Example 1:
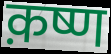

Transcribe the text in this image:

क़ष्ण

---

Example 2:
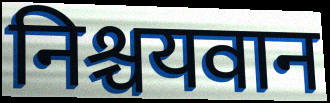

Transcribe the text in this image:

निश्चयवान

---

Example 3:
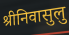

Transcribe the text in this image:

श्रीनिवासुलु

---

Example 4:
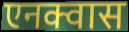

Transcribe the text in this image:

एनक्वास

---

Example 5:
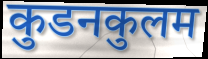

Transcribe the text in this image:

कुडनकुलम